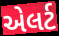
એલર્ટ